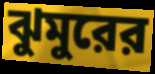
ঝুমুরের